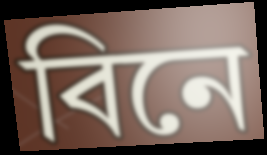
বিনে